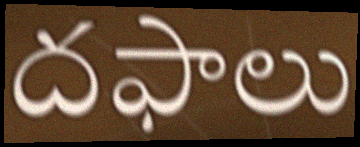
దఫాలు